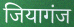
जियागंज